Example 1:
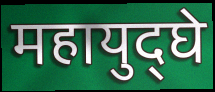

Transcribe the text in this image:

महायुद्घे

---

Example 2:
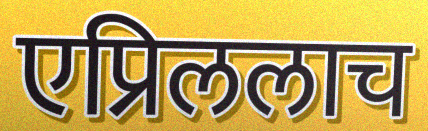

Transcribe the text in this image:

एप्रिललाच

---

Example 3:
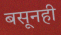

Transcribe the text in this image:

बसूनही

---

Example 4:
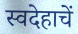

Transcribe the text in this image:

स्वदेहाचें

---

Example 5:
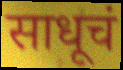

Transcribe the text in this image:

साधूचं